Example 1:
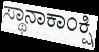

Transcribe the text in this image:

ಸ್ಥಾನಾಕಾಂಕ್ಷಿ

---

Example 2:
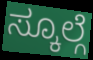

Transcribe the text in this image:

ಸ್ಕೂಲ್ಗೆ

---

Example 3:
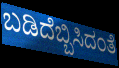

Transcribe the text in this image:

ಬಡಿದೆಬ್ಬಿಸಿದಂತೆ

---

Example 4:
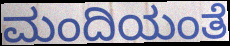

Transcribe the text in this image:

ಮಂದಿಯಂತೆ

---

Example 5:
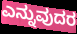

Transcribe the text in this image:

ಎನ್ನುವುದರ